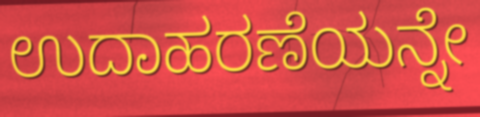
ಉದಾಹರಣೆಯನ್ನೇ